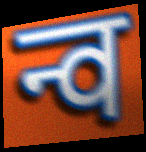
न्व